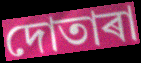
দোতাৰা